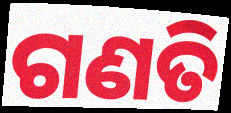
ଗଣତି